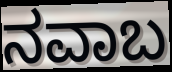
ನವಾಬ